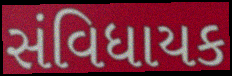
સંવિધાયક